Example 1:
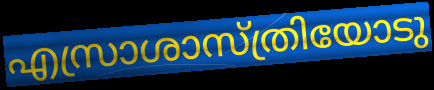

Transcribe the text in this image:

എസ്രാശാസ്ത്രിയോടു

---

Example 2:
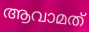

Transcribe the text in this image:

ആവാമത്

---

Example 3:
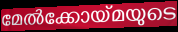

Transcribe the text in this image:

മേൽക്കോയ്മയുടെ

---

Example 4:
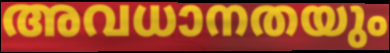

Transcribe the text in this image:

അവധാനതയും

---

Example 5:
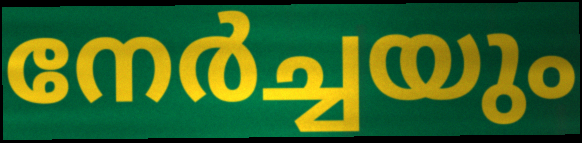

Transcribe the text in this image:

നേർച്ചയും